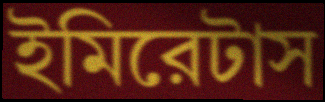
ইমিরেটাস